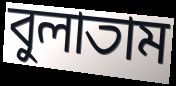
বুলাতাম